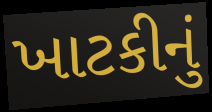
ખાટકીનું